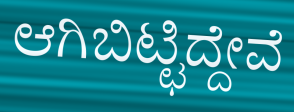
ಆಗಿಬಿಟ್ಟಿದ್ದೇವೆ